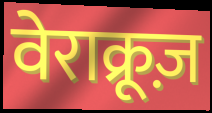
वेराक्रूज़